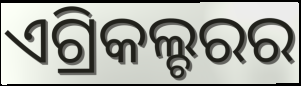
ଏଗ୍ରିକଲ୍ଚରର